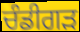
ਚੰਡੀਗਡ਼